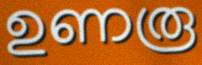
ഉണരൂ